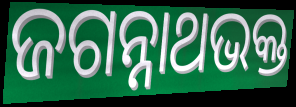
ଜଗନ୍ନାଥଭକ୍ତ